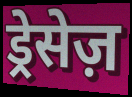
ड्रेसेज़